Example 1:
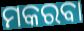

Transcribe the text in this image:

ମକରବା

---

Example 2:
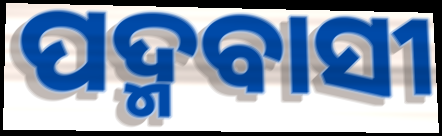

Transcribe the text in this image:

ପଦ୍ମବାସୀ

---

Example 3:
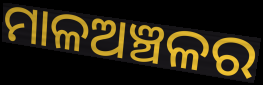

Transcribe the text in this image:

ମାଳଅଞ୍ଚଳର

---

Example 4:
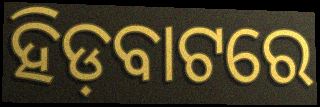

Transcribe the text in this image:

ହିଡ଼ବାଟରେ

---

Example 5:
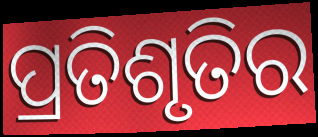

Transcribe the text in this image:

ପ୍ରତିଶୃତିର